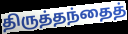
திருத்தந்தைத்